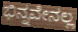
ಭಿನ್ನವೇನಲ್ಲ